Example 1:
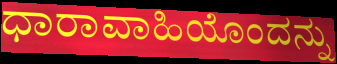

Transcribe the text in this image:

ಧಾರಾವಾಹಿಯೊಂದನ್ನು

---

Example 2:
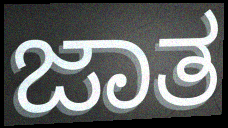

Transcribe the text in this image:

ಜಾತ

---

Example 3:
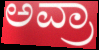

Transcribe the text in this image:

ಅವ್ರಾ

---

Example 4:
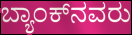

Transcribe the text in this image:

ಬ್ಯಾಂಕ್‌ನವರು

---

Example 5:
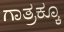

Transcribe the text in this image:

ಗಾತ್ರಕ್ಕೂ